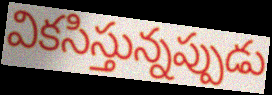
వికసిస్తున్నప్పుడు